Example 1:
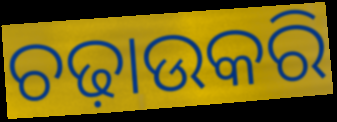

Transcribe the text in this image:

ଚଢ଼ାଉକରି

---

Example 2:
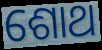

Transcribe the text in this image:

ଶୋଥ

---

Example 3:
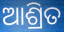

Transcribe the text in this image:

ଆଶ୍ରିତ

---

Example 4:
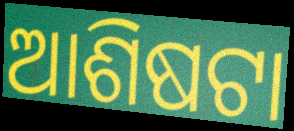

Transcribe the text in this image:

ଆଶିଷଟା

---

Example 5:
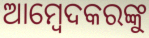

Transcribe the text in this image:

ଆମ୍ବେଦକରଙ୍କୁ